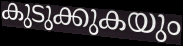
കുടുക്കുകയും